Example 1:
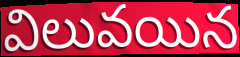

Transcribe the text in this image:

విలువయిన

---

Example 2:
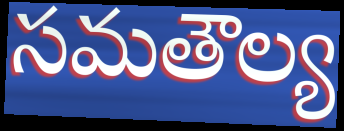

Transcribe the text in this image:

సమతౌల్య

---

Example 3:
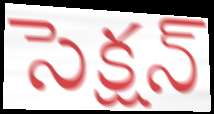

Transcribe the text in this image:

సెక్షన్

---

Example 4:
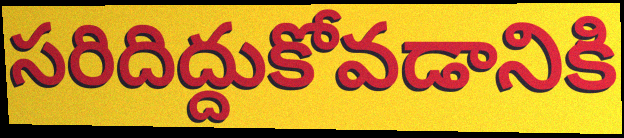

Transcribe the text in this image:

సరిదిద్దుకోవడానికి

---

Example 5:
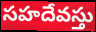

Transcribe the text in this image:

సహదేవస్తు